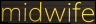
midwife